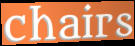
chairs